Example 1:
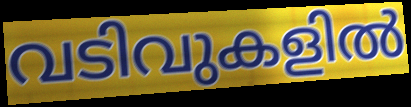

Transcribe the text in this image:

വടിവുകളിൽ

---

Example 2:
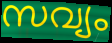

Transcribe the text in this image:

സവ്യം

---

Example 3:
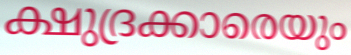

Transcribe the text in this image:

ക്ഷുദ്രക്കാരെയും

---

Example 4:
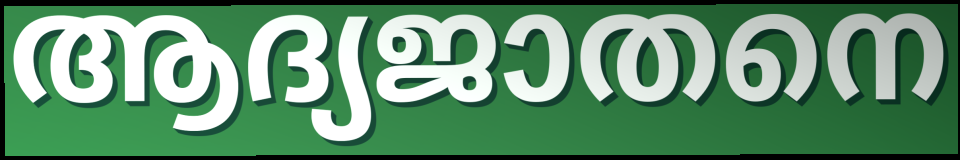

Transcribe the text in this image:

ആദ്യജാതനെ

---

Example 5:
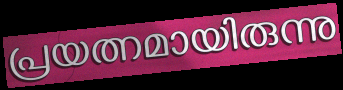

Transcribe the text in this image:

പ്രയത്നമായിരുന്നു